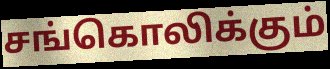
சங்கொலிக்கும்